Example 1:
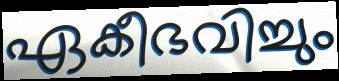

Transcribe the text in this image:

ഏകീഭവിച്ചും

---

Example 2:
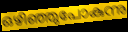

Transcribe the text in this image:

ഒഴിഞ്ഞുപോകുന്നു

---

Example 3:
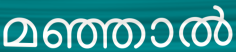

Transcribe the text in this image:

മഞ്ഞാൽ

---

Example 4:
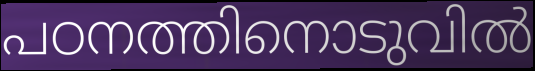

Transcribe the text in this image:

പഠനത്തിനൊടുവിൽ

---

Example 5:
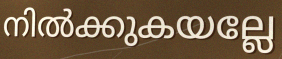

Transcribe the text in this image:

നിൽക്കുകയല്ലേ